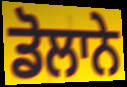
ਡੋਲਾਨੇ